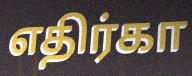
எதிர்கா